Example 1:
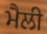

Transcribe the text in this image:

ਮੈਲੀ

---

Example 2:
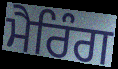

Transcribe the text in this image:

ਮੈਰਿੰਗ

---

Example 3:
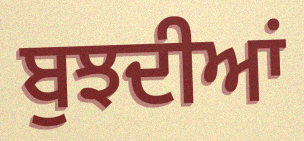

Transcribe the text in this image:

ਬੁਝਦੀਆਂ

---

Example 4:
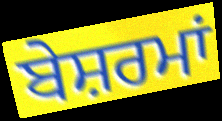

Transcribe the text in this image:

ਬੇਸ਼ਰਮਾਂ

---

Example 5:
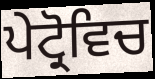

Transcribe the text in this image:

ਪੇਟ੍ਰੋਵਿਚ